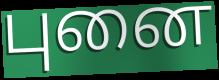
புனை